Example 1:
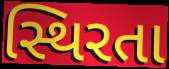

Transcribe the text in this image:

સ્થિરતા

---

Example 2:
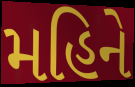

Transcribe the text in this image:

મહિને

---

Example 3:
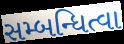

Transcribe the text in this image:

સમ્બન્ધિત્વા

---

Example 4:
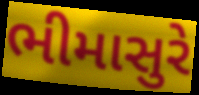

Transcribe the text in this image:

ભીમાસુરે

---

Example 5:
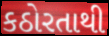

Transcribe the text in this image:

કઠોરતાથી